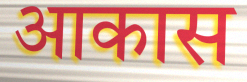
आकास